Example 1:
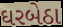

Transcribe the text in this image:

ઘરબેઠા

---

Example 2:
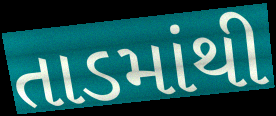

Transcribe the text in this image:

તાડમાંથી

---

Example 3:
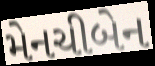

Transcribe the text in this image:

મેનચીબેન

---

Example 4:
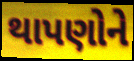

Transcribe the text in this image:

થાપણોને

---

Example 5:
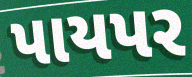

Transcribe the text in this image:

પાયપર